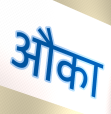
औका